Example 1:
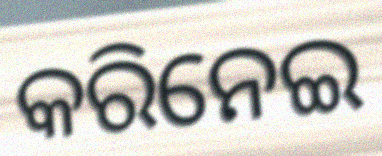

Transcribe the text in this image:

କରିନେଇ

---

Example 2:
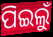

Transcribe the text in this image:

ପିଇଲୁଁ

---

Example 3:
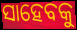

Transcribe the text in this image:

ସାହେବକୁ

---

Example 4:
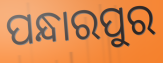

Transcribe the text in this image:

ପନ୍ଧାରପୁର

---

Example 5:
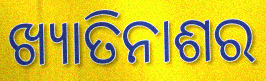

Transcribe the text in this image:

ଖ୍ୟାତିନାଶର